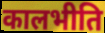
कालभीति